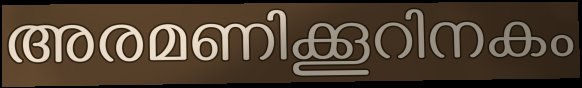
അരമണിക്കൂറിനകം